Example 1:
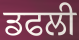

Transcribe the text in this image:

ਡਫਲੀ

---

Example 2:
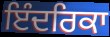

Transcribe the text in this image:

ਇੰਦਰਿਕਾ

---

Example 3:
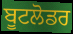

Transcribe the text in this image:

ਬੂਟਲੋਡਰ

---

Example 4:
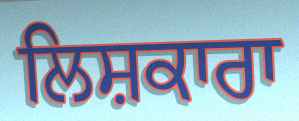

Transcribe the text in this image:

ਲਿਸ਼ਕਾਰਾ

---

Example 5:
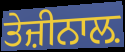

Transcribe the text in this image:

ਤੇਜ਼ੀਨਾਲ਼